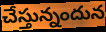
చేస్తున్నందున